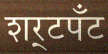
शर्टपॅंट